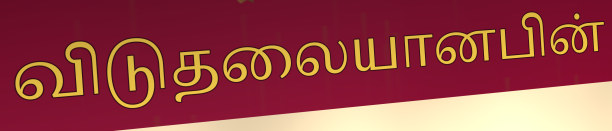
விடுதலையானபின்